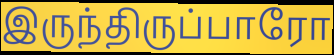
இருந்திருப்பாரோ